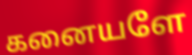
கனையளே